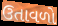
ઉતાવળો